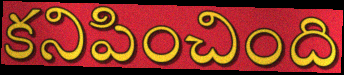
కనిపించింది